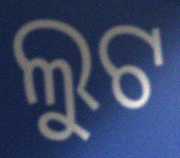
ଲୁଟ